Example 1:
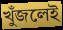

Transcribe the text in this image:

খুঁজলেই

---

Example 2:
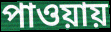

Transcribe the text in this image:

পাওয়ায়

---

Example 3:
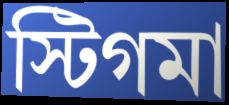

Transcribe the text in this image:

স্টিগমা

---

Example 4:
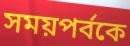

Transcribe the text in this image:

সময়পর্বকে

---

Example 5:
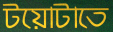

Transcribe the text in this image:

টয়োটাতে